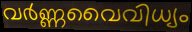
വർണ്ണവൈവിധ്യം